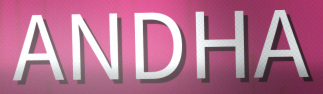
ANDHA